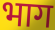
भाग